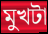
মুখটা